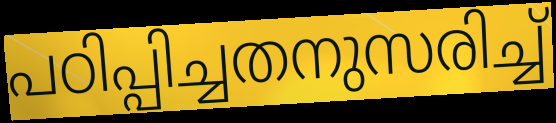
പഠിപ്പിച്ചതനുസരിച്ച്